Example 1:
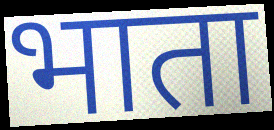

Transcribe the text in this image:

भाता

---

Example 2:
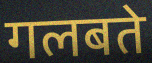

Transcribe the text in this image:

गलबते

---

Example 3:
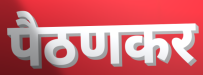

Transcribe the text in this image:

पैठणकर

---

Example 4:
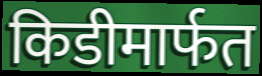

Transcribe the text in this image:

किडीमार्फत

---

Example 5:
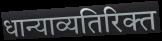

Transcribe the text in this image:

धान्याव्यतिरिक्त